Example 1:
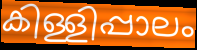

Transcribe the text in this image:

കിള്ളിപ്പാലം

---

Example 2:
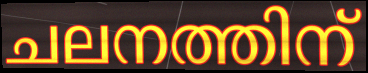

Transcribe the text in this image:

ചലനത്തിന്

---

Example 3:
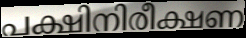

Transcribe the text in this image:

പക്ഷിനിരീക്ഷണ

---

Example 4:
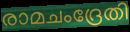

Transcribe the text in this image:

രാമചംദ്രേതി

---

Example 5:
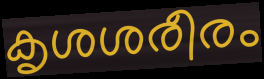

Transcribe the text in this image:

കൃശശരീരം